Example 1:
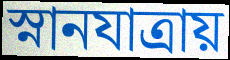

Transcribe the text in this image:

স্নানযাত্রায়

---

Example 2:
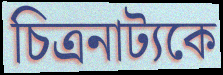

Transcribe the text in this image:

চিত্রনাট্যকে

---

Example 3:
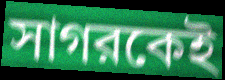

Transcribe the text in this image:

সাগরকেই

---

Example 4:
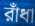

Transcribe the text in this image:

রাঁধা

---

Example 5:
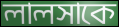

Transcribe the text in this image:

লালসাকে